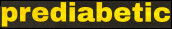
prediabetic